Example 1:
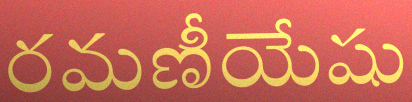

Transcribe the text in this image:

రమణీయేషు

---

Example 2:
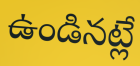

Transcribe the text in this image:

ఉండినట్లే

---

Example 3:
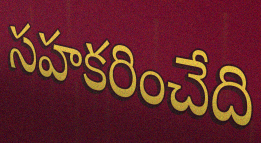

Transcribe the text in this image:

సహకరించేది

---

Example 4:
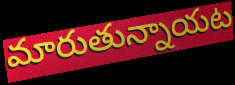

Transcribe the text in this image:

మారుతున్నాయట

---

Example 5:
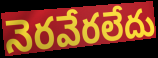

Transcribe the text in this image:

నెరవేరలేదు